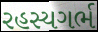
રહસ્યગર્ભ